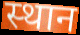
स्थान